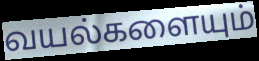
வயல்களையும்